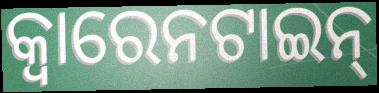
କ୍ୱାରେନଟାଇନ୍